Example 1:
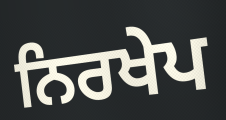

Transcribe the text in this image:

ਨਿਰਖੇਪ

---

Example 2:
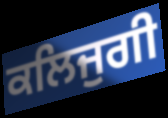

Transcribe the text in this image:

ਕਲਿਜੁਗੀ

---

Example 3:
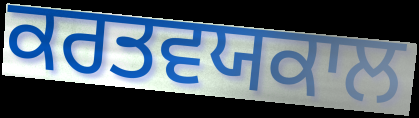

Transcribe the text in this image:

ਕਰਤਵਯਕਾਲ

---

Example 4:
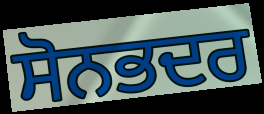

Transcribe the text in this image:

ਸੋਨਭਦਰ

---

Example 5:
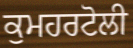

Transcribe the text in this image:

ਕੁਮਹਰਟੋਲੀ